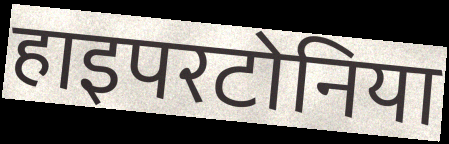
हाइपरटोनिया